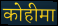
कोहीमा